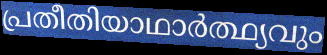
പ്രതീതിയാഥാർത്ഥ്യവും